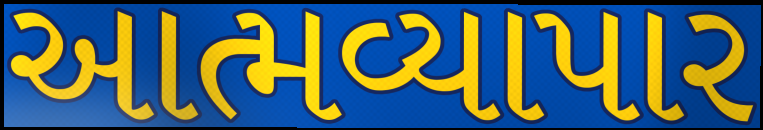
આત્મવ્યાપાર